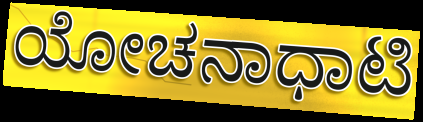
ಯೋಚನಾಧಾಟಿ